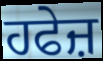
ਹਫੇਜ਼